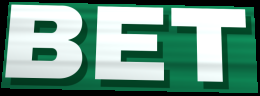
BET